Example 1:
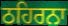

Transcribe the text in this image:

ਠਹਿਰਨਾ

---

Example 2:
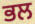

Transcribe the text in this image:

ਭਲ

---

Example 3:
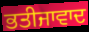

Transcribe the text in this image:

ਭਤੀਜਾਵਾਦ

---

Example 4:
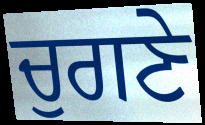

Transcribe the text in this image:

ਚੁਗਣੇ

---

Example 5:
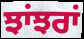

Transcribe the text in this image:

ਝਾਂਝਰਾਂ